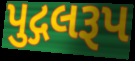
પુદ્ગલરૂપ